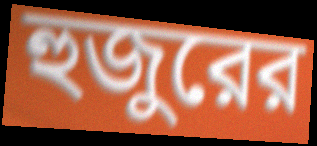
হুজুরের